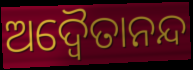
ଅଦ୍ଵୈତାନନ୍ଦ